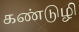
கண்டுழி